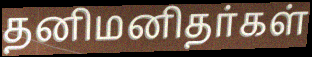
தனிமனிதர்கள்